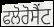
ਫਲੋਰੋਸੈਂਟ